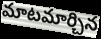
మాటమార్చిన